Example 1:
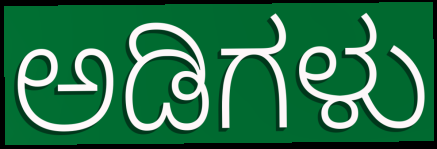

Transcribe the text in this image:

ಅಡಿಗಳು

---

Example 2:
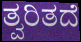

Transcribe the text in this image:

ತ್ವರಿತದೆ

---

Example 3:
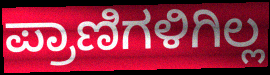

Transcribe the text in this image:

ಪ್ರಾಣಿಗಳಿಗಿಲ್ಲ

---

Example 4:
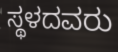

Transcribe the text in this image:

ಸ್ಥಳದವರು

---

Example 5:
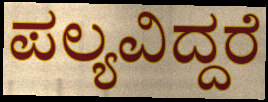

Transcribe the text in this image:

ಪಲ್ಯವಿದ್ದರೆ